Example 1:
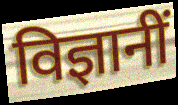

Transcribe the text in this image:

विज्ञानीं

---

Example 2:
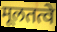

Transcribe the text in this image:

मूलतत्वे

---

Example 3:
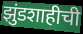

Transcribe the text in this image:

झुंडशाहीची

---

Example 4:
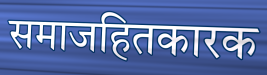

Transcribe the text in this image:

समाजहितकारक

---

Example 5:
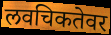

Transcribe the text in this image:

लवचिकतेवर